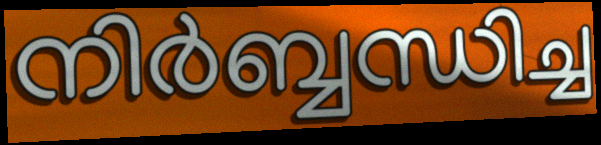
നിർബ്ബന്ധിച്ച